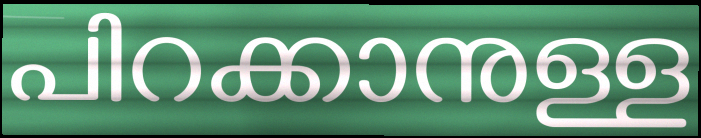
പിറക്കാനുള്ള